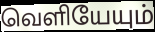
வெளியேயும்